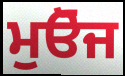
ਮੁਓੋਜ